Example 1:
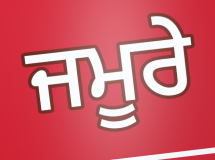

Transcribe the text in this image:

ਜਮੂਰੇ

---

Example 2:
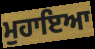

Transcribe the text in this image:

ਮੁਹਾਇਆ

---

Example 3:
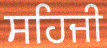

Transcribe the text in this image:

ਸਹਿਜੀ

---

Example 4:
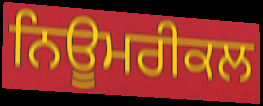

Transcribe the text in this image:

ਨਿਊਮਰੀਕਲ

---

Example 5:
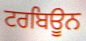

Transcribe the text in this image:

ਟਰਬਿਊਨ